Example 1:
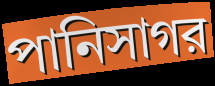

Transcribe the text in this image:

পানিসাগর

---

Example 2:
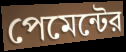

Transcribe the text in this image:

পেমেন্টের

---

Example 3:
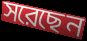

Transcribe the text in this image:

সরেছেন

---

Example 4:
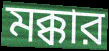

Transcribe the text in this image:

মক্কার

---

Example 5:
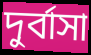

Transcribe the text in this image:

দুর্বাসা